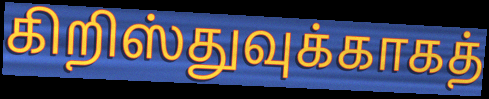
கிறிஸ்துவுக்காகத்